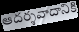
ఆదర్శవాదానికి